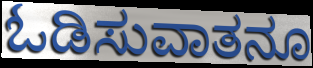
ಓಡಿಸುವಾತನೂ